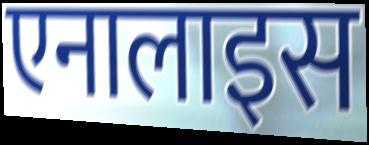
एनालाइस